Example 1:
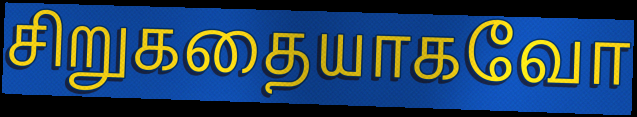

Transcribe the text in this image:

சிறுகதையாகவோ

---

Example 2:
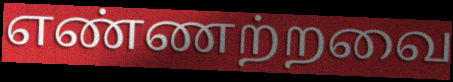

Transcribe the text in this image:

எண்ணற்றவை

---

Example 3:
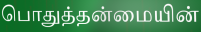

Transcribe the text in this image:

பொதுத்தன்மையின்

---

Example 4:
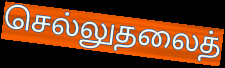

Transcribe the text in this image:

செல்லுதலைத்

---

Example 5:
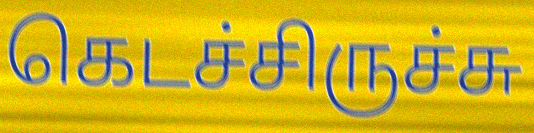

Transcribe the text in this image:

கெடச்சிருச்சு